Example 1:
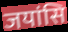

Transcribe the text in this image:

जयांसि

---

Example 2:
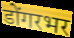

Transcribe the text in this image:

डोंगरभर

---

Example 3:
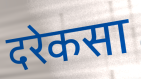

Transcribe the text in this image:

दरेकसा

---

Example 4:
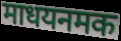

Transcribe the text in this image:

माधयनमक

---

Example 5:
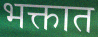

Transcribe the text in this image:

भक्तात